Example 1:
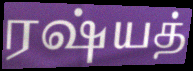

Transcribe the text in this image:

ரஷ்யத்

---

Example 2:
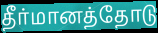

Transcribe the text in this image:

தீர்மானத்தோடு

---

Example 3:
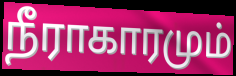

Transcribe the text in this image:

நீராகாரமும்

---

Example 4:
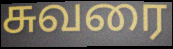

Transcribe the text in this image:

சுவரை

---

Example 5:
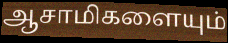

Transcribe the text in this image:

ஆசாமிகளையும்